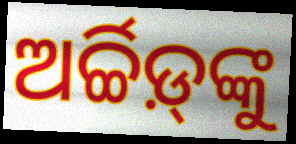
ଅର୍ଚ୍ଚିଡ଼୍‌ଙ୍କୁ